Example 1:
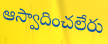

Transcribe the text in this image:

ఆస్వాదించలేరు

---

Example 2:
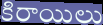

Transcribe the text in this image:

కిరాయిలు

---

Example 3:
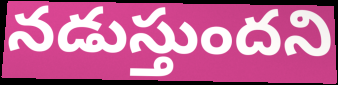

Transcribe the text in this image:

నడుస్తుందని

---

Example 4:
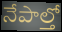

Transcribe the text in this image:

నేపాల్తో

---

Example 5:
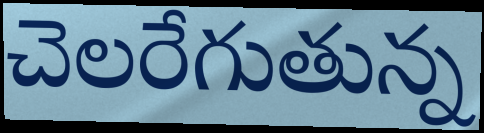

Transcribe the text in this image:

చెలరేగుతున్న